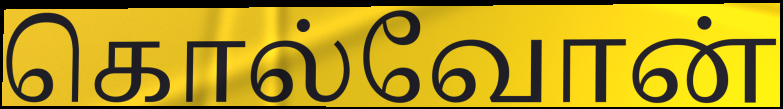
கொல்வோன்